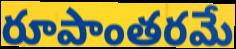
రూపాంతరమే